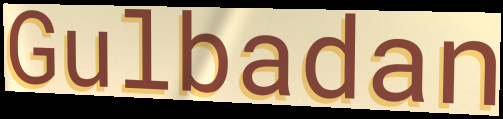
Gulbadan